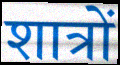
शात्रों